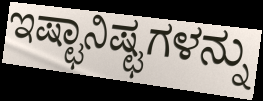
ಇಷ್ಟಾನಿಷ್ಟಗಳನ್ನು